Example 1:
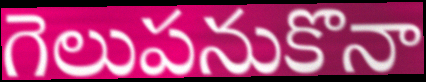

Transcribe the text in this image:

గెలుపనుకొనా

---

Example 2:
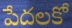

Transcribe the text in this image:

పేదలకో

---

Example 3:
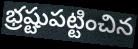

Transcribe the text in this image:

భ్రష్టుపట్టించిన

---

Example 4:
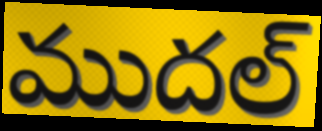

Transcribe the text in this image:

ముదల్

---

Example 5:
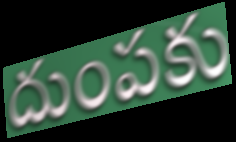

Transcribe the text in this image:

దుంపకు